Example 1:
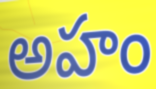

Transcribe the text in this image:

అహం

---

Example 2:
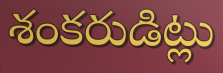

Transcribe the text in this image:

శంకరుడిట్లు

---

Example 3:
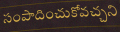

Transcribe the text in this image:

సంపాదించుకోవచ్చని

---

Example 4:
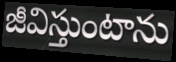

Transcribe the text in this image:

జీవిస్తుంటాను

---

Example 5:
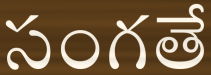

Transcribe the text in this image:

సంగతే